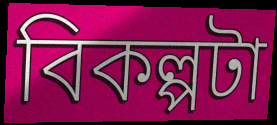
বিকল্পটা